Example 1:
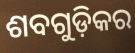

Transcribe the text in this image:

ଶବଗୁଡ଼ିକର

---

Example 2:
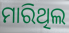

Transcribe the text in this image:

ମାରିଥିଲ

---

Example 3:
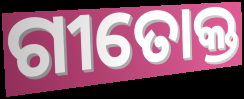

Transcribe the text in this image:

ଗୀତୋକ୍ତ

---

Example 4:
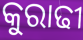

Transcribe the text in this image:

କୁରାଢୀ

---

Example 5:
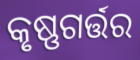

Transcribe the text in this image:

କୃଷ୍ଣଗର୍ତ୍ତର